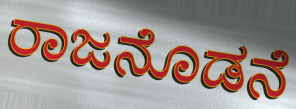
ರಾಜನೊಡನೆ